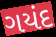
ગયંદ